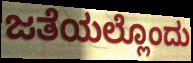
ಜತೆಯಲ್ಲೊಂದು